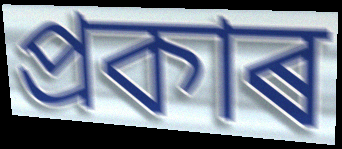
প্ৰকাৰ